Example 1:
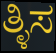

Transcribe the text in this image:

ತ್ಳಿಸ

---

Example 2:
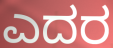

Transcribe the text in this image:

ಎದರ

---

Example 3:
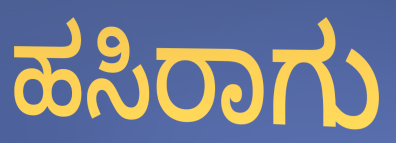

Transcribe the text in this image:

ಹಸಿರಾಗು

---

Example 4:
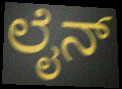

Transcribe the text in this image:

ಲೈನ್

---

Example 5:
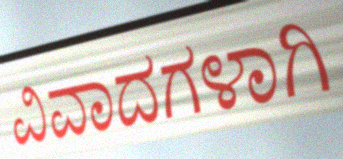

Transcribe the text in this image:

ವಿವಾದಗಳಾಗಿ